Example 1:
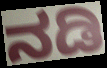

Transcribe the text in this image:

ನಡಿ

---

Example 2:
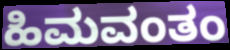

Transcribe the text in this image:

ಹಿಮವಂತಂ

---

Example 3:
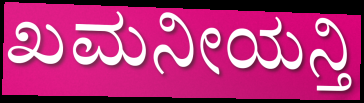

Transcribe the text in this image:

ಖಮನೀಯನ್ತಿ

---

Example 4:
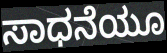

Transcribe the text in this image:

ಸಾಧನೆಯೂ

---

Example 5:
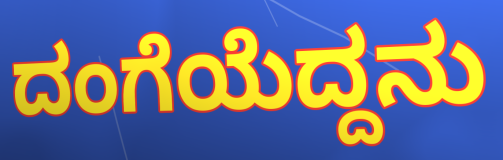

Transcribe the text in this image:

ದಂಗೆಯೆದ್ದನು